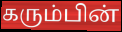
கரும்பின்